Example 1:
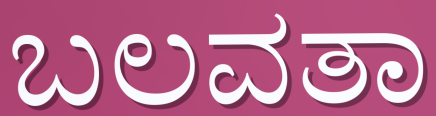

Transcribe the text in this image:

ಬಲವತಾ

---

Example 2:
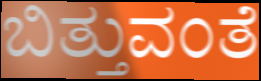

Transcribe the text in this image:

ಬಿತ್ತುವಂತೆ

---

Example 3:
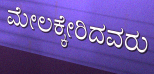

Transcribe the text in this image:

ಮೇಲಕ್ಕೇರಿದವರು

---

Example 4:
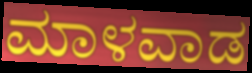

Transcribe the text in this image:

ಮಾಳವಾಡ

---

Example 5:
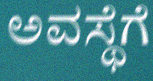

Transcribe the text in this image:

ಅವಸ್ಥೆಗೆ